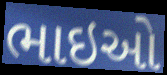
ભાઇઓ